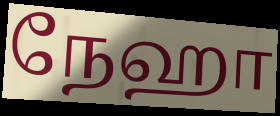
நேஹா